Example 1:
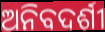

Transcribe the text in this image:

ଅନିବଦର୍ଶୀ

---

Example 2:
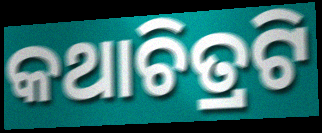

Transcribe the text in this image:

କଥାଚିତ୍ରଟି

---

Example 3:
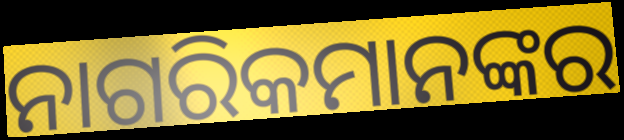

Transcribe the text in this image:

ନାଗରିକମାନଙ୍କର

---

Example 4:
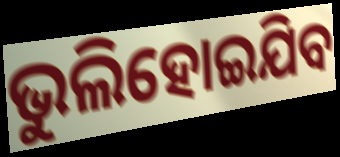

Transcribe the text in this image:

ଭୁଲିହୋଇଯିବ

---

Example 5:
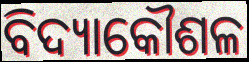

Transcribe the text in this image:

ବିଦ୍ୟାକୌଶଳ